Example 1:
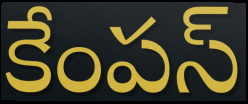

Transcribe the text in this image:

కేంపస్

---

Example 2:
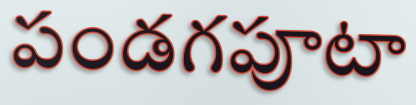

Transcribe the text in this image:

పండగపూటా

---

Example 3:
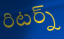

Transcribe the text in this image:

రిటర్న్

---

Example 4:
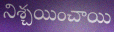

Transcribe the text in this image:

నిశ్చయించాయి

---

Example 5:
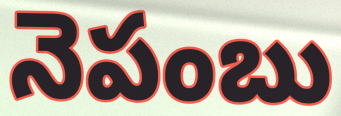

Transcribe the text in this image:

నెపంబు